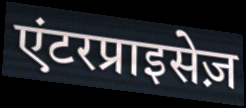
एंटरप्राइसेज़